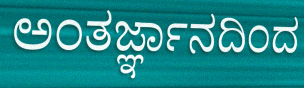
ಅಂತರ್ಜ್ಞಾನದಿಂದ